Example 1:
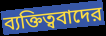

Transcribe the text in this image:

ব্যক্তিত্ববাদের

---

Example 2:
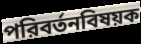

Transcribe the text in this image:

পরিবর্তনবিষয়ক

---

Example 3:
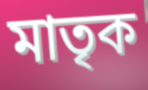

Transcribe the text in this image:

মাতৃক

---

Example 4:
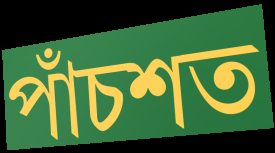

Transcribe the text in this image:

পাঁচশত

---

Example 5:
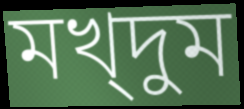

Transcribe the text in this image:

মখ্দুম